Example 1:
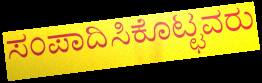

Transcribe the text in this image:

ಸಂಪಾದಿಸಿಕೊಟ್ಟವರು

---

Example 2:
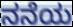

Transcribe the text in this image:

ನನೆಯ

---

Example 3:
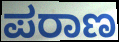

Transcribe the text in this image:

ಪರಾಣ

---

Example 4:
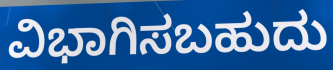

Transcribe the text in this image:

ವಿಭಾಗಿಸಬಹುದು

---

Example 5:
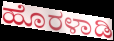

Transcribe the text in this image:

ಹೊರಳಾಡಿ